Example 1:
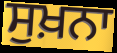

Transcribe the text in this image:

ਸੁਖ਼ਨਾ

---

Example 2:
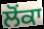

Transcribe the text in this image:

ਲੋਂਕਾ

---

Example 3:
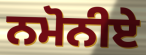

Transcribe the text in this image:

ਨਮੋਨੀਏ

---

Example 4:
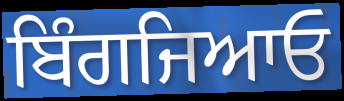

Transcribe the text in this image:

ਬਿੰਗਜਿਆਓ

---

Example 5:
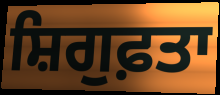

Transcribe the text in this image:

ਸ਼ਿਗੁਫ਼ਤਾ